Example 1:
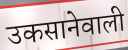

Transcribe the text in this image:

उकसानेवाली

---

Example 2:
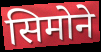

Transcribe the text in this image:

सिमोने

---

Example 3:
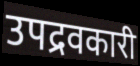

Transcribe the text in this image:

उपद्रवकारी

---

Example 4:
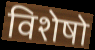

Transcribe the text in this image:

विशेषो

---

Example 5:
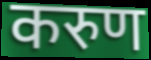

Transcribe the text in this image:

करुण